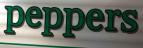
peppers